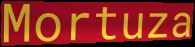
Mortuza